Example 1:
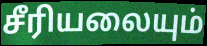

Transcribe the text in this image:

சீரியலையும்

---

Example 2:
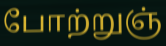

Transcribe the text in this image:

போற்றுஞ்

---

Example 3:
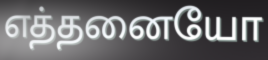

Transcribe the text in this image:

எத்தனையோ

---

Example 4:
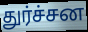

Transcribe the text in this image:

துர்ச்சன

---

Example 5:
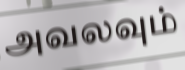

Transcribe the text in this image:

அவலவும்